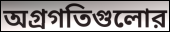
অগ্রগতিগুলোর